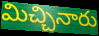
మిచ్చినారు